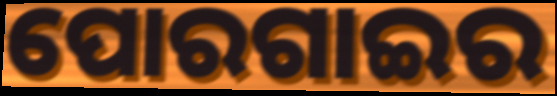
ପୋରଗାଇର